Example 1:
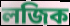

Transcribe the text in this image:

লজিক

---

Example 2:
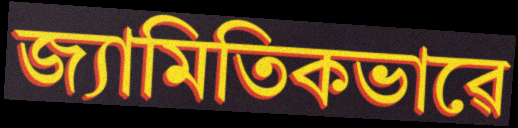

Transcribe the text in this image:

জ্যামিতিকভাৱে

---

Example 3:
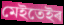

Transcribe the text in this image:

মেইতেইৰ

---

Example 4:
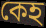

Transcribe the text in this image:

কেহ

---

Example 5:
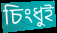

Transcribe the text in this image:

চিংধুই